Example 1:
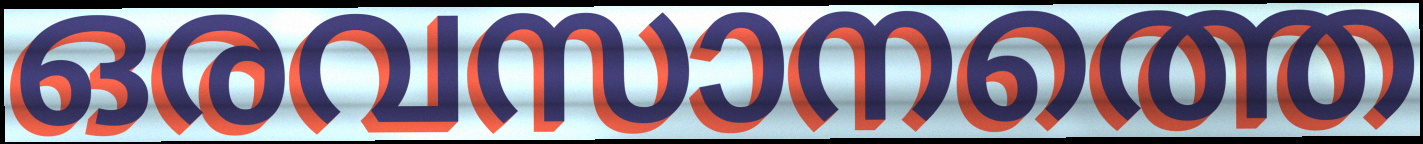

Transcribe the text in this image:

ഒരവസാനത്തെ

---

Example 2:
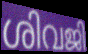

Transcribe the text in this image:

ശിവജി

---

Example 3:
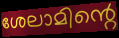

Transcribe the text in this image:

ശേലാമിന്റെ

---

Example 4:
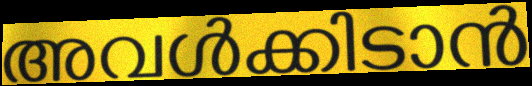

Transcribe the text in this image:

അവൾക്കിടാൻ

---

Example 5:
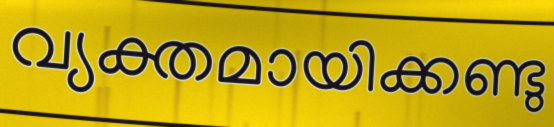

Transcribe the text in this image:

വ്യക്തമായിക്കണ്ടു